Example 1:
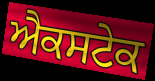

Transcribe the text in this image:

ਐਕਸਟੇਕ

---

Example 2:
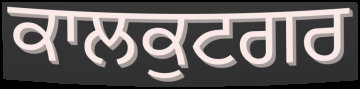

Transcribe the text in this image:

ਕਾਲਕੁਟਗਰ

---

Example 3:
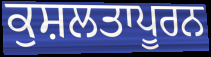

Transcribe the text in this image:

ਕੁਸ਼ਲਤਾਪੂਰਨ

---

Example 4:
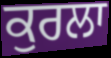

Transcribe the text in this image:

ਕੁਰਲਾ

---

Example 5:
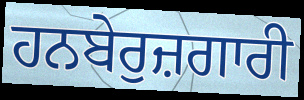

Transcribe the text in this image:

ਹਨਬੇਰੁਜ਼ਗਾਰੀ